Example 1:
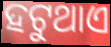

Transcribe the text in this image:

ହଟୁଥାଏ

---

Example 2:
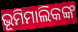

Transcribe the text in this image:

ଭୂମିମାଲିକଙ୍କ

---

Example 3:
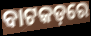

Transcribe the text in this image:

ବାଟକଡ଼ରେ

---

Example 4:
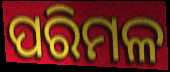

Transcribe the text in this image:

ପରିମଳ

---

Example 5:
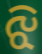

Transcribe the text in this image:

ଝି